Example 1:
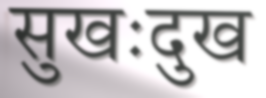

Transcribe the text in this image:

सुखःदुख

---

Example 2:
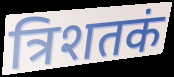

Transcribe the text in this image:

त्रिशतकं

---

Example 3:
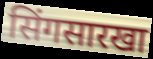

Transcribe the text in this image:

सिंगसारखा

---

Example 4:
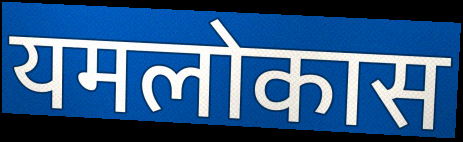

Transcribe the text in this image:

यमलोकास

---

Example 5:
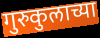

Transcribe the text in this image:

गुरुकुलाच्या